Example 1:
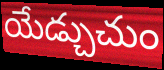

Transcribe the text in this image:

యేడ్చుచుం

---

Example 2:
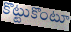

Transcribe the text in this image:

కొట్టుకొంటూ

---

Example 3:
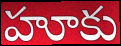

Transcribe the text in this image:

హూకు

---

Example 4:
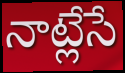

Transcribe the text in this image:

నాట్లేసే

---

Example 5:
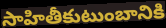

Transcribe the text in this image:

సాహితీకుటుంబానికి